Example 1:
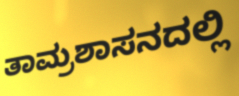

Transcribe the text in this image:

ತಾಮ್ರಶಾಸನದಲ್ಲಿ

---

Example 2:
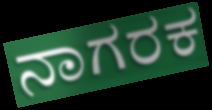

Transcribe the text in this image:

ನಾಗರಕ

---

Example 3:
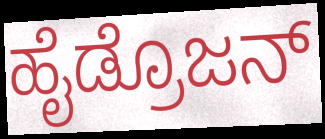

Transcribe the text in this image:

ಹೈಡ್ರೊಜನ್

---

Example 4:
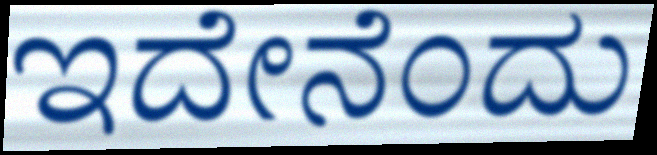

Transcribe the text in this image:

ಇದೇನೆಂದು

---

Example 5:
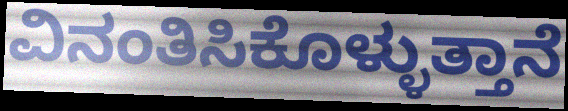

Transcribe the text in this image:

ವಿನಂತಿಸಿಕೊಳ್ಳುತ್ತಾನೆ